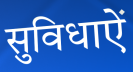
सुविधाऐं